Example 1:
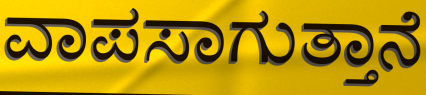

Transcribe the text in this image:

ವಾಪಸಾಗುತ್ತಾನೆ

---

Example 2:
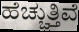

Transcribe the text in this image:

ಹೆಚ್ಚುತ್ತಿವೆ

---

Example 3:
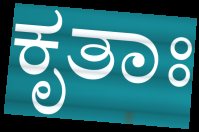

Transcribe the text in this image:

ಕೃತಾಃ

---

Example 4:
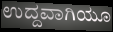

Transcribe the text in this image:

ಉದ್ದವಾಗಿಯೂ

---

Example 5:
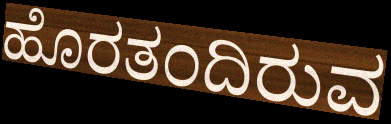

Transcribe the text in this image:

ಹೊರತಂದಿರುವ